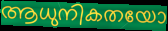
ആധുനികതയോ